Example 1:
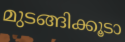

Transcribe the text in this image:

മുടങ്ങിക്കൂടാ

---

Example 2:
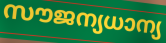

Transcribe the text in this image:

സൗജന്യധാന്യ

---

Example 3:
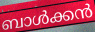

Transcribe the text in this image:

ബാൾക്കൻ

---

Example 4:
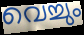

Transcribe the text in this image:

വെച്ചും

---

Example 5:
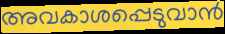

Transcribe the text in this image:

അവകാശപ്പെടുവാൻ